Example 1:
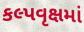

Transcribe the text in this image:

કલ્પવૃક્ષમાં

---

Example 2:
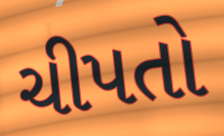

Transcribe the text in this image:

ચીપતો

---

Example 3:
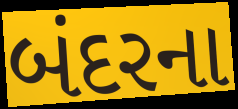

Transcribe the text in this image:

બંદરના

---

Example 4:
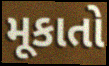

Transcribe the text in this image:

મૂકાતો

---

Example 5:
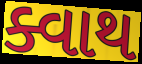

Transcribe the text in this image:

ક્વાથ